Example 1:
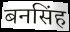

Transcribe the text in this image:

बनसिंह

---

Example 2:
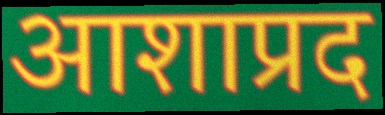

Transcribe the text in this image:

आशाप्रद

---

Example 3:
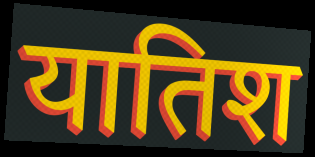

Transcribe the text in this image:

यातिश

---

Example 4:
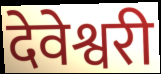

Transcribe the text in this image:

देवेश्वरी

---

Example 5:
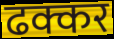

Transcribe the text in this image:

ढक्कर